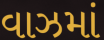
વાઝમાં